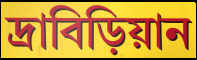
দ্রাবিড়িয়ান